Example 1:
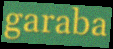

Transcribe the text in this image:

garaba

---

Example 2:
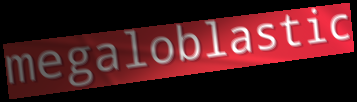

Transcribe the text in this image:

megaloblastic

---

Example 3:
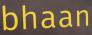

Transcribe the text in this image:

bhaan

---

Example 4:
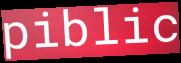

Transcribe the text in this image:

piblic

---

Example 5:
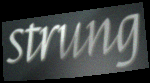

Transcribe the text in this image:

strung